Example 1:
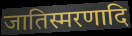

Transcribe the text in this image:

जातिस्मरणादि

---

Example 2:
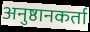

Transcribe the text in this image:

अनुष्ठानकर्ता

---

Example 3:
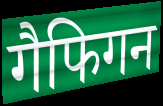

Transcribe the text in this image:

गैफिगन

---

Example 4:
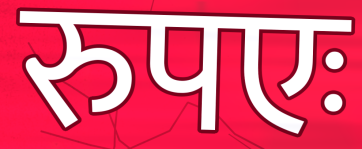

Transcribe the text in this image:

रुपएः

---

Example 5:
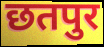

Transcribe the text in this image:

छतपुर